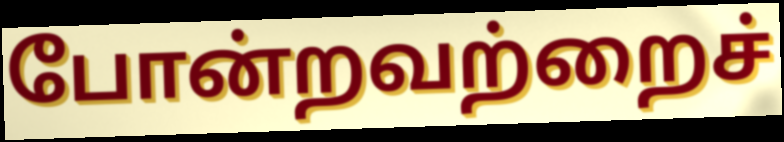
போன்றவற்றைச்